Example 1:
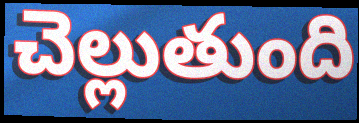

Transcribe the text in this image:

చెల్లుతుంది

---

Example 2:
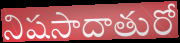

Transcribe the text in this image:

నిషసాదాతురో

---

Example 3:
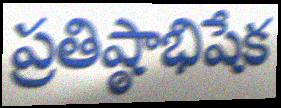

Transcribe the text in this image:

ప్రతిష్ఠాభిషేక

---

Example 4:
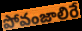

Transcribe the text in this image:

పోవంజాలిరే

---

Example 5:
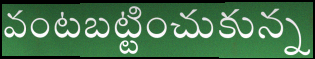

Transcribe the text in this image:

వంటబట్టించుకున్న